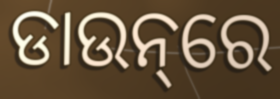
ଡାଉନ୍‌ରେ